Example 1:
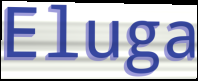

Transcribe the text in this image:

Eluga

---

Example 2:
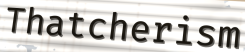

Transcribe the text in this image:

Thatcherism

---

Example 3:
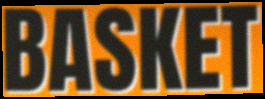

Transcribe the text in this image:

BASKET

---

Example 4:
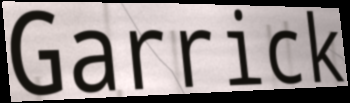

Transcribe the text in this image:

Garrick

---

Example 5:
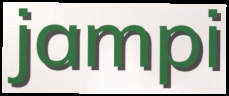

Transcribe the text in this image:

jampi